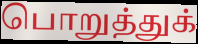
பொறுத்துக்